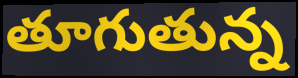
తూగుతున్న